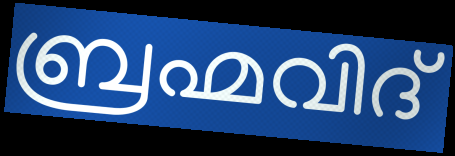
ബ്രഹ്മവിദ്